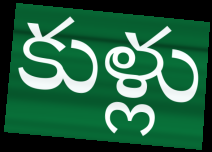
కుళ్లు